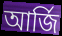
আর্জি